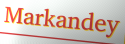
Markandey